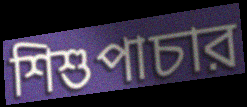
শিশুপাচার